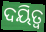
ଦୟିତ୍ୱ